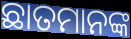
ଛାତମାନଙ୍କ